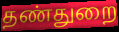
தண்துறை